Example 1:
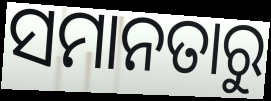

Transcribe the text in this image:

ସମାନତାରୁ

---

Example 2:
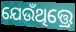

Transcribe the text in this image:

ଯେଉଁଥିତ୍ତ୍ରେ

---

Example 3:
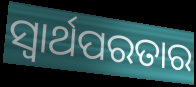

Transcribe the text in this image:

ସ୍ଵାର୍ଥପରତାର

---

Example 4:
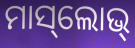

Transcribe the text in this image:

ମାସ୍‌ଲୋଭ୍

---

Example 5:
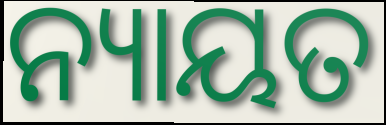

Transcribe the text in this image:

ନ୍ୟାୟତ